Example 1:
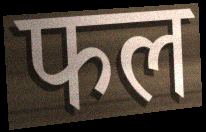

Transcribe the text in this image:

फल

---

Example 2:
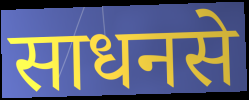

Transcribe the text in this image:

साधनसे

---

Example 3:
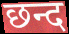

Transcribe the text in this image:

छन्द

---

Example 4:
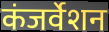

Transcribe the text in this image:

कंजर्वेशन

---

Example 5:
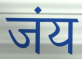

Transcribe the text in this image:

जंय